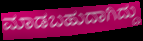
ಮಾಡಬಹುದಾಗಿದ್ದು